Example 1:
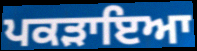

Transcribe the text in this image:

ਪਕੜਾਇਆ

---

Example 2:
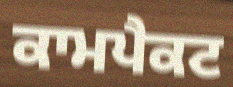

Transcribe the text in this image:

ਕਾਮਪੈਕਟ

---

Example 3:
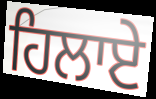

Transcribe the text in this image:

ਹਿਲਾਏ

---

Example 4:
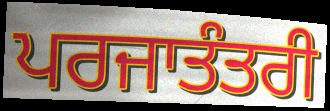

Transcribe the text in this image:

ਪਰਜਾਤੰਤਰੀ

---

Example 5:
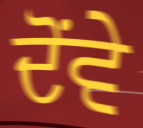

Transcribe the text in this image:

ਦੋਂਵੇ